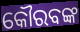
କୌରବଙ୍କ